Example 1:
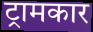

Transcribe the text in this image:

ट्रामकार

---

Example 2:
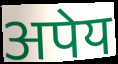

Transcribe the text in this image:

अपेय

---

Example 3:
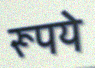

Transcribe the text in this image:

रूपये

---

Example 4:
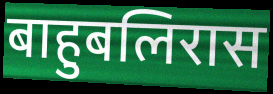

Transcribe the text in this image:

बाहुबलिरास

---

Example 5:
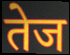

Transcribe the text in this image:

तेज